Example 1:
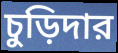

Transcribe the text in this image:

চুড়িদার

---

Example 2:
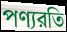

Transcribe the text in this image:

পণ্যরতি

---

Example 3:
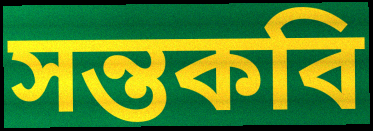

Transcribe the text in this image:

সন্তকবি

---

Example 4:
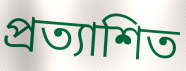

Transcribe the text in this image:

প্রত্যাশিত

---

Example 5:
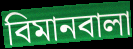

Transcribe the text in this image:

বিমানবালা